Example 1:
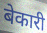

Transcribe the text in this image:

बेकारी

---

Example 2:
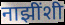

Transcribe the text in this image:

नाझींशी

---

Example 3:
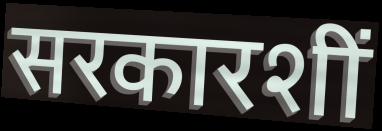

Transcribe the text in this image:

सरकारशीं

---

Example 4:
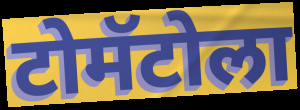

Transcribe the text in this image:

टोमॅटोला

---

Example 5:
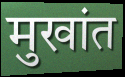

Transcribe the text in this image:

मुखांत